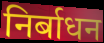
निर्बाधन